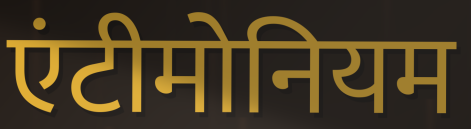
एंटीमोनियम